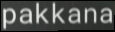
pakkana